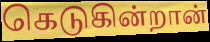
கெடுகின்றான்